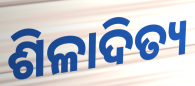
ଶିଳାଦିତ୍ୟ